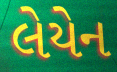
લેયેન